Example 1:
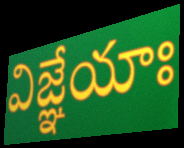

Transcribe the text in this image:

విజ్ఞేయాః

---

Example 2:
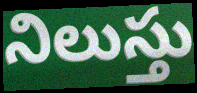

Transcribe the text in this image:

నిలుస్తు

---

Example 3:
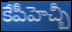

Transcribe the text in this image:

కేపీహెచ్బీ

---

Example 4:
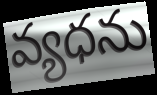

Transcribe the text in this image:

వ్యధను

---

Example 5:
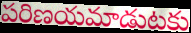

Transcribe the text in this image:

పరిణయమాడుటకు